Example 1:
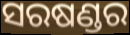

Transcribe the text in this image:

ସରଷଣ୍ଡର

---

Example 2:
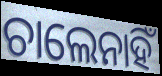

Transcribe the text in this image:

ଚାଲେନାହିଁ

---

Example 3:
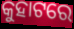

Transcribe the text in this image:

କୁହାଟରେ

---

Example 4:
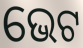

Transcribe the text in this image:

ଭେଟ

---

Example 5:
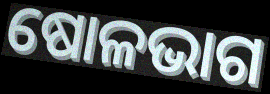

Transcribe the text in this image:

ଷୋଳଭାଗ